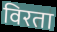
विरता